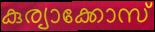
കുര്യാക്കോസ്